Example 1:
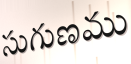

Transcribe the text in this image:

సుగుణము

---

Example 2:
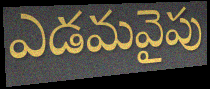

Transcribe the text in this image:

ఎడమవైపు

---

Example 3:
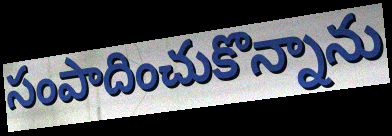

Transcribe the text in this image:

సంపాదించుకొన్నాను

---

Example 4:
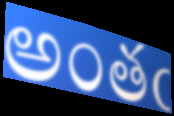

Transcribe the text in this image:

అంతఁ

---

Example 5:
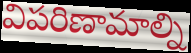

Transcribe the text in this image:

విపరిణామాల్ని